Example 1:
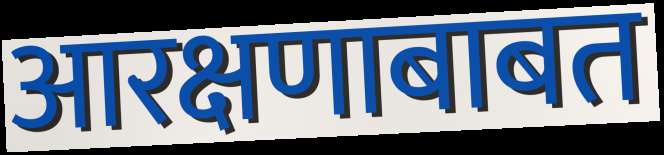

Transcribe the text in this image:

आरक्षणाबाबत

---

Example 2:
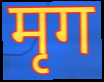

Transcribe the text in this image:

मृग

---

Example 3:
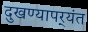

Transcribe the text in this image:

दुखण्यापर्यंत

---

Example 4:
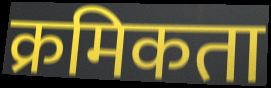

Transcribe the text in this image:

क्रमिकता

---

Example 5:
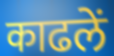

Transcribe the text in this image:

काढलें